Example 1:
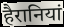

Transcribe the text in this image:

हैरानियां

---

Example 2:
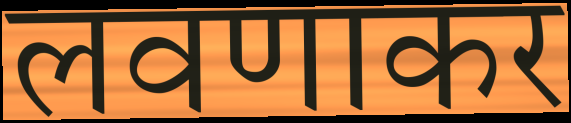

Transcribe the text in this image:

लवणाकर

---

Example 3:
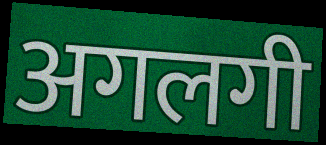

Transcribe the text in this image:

अगलगी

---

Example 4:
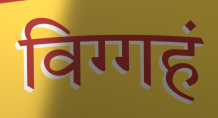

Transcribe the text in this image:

विग्गहं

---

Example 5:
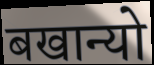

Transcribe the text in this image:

बखान्यो